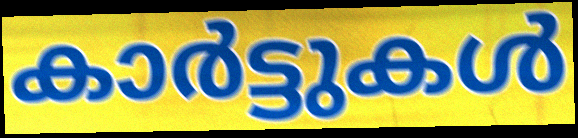
കാർട്ടുകൾ